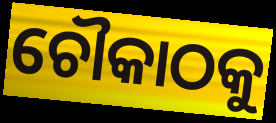
ଚୌକାଠକୁ